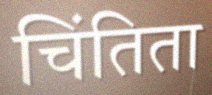
चिंतिता